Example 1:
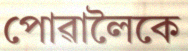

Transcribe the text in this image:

পোৱালৈকে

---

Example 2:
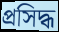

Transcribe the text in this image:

প্ৰসিদ্ধ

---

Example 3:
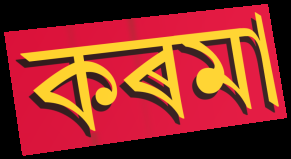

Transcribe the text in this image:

কৰমা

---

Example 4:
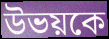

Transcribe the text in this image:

উভয়কে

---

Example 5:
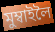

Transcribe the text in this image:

মুম্বাইলৈ